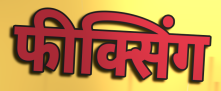
फीक्सिंग